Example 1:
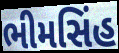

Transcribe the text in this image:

ભીમસિંહ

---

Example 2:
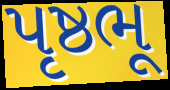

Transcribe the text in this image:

પૃષ્ઠભૂ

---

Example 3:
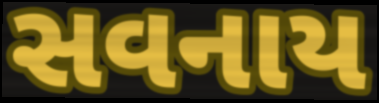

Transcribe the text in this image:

સવનાય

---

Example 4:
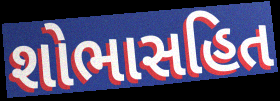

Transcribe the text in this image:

શોભાસહિત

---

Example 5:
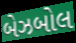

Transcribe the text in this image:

બેઝબોલ